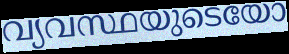
വ്യവസ്ഥയുടെയോ